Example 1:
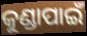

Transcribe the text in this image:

କୁଣ୍ଡାପାଇଁ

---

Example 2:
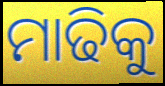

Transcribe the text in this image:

ମାଢିକୁ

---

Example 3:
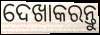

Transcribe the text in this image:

ଦେଖାକରନ୍ତୁ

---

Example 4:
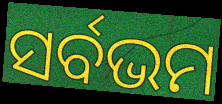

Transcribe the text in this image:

ସର୍ବଭମ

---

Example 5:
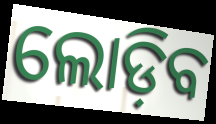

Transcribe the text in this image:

ଲୋଡ଼ିବ